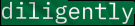
diligently